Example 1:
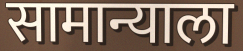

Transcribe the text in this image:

सामान्याला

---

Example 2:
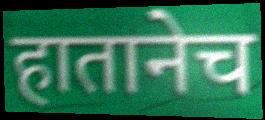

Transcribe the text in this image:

हातानेच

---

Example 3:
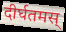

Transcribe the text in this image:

दीर्घतमस्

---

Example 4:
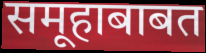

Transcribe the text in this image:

समूहाबाबत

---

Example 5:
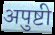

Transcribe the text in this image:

अपुष्टी